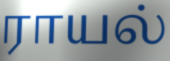
ராயல்